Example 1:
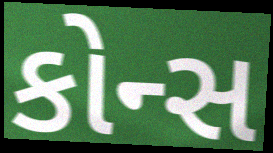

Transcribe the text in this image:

કોન્સ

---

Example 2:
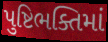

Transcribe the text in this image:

પુષ્ટિભક્તિમાં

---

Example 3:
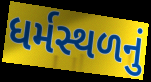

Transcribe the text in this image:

ધર્મસ્થળનું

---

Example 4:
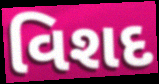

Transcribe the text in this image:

વિશદ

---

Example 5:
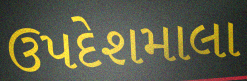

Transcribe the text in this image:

ઉપદેશમાલા